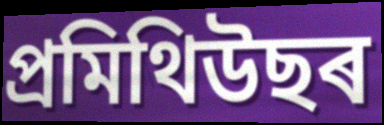
প্ৰমিথিউছৰ